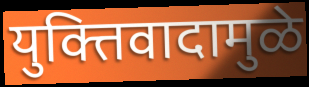
युक्तिवादामुळे